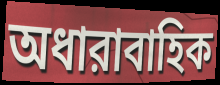
অধারাবাহিক